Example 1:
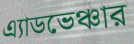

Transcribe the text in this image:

এ্যাডভেঞ্চার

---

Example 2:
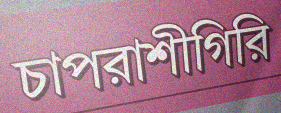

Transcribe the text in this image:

চাপরাশীগিরি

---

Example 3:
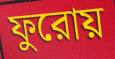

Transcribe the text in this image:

ফুরোয়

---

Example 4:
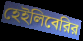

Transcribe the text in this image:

হেইলিবেরির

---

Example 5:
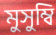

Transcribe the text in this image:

মুসুম্বি